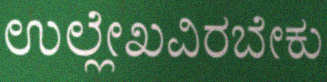
ಉಲ್ಲೇಖವಿರಬೇಕು